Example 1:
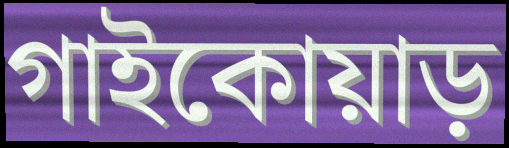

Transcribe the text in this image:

গাইকোয়াড়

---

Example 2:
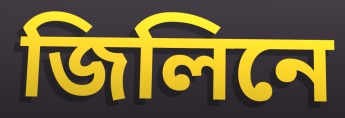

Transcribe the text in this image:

জিলিনে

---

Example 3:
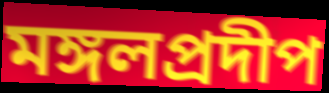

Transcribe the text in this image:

মঙ্গলপ্রদীপ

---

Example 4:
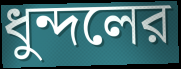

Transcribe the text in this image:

ধুন্দলের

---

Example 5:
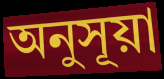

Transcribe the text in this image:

অনুসূয়া